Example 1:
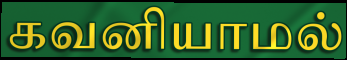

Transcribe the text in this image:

கவனியாமல்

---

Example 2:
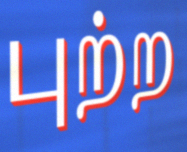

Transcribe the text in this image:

புற்ற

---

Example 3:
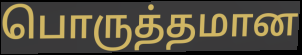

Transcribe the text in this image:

பொருத்தமான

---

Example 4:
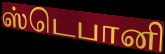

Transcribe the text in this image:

ஸ்டெபானி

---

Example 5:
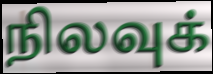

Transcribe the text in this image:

நிலவுக்